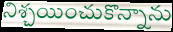
నిశ్చయించుకొన్నాను